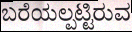
ಬರೆಯಲ್ಪಟ್ಟಿರುವ